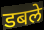
डबले